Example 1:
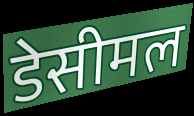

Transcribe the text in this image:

डेसीमल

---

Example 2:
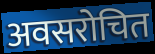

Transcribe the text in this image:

अवसरोचित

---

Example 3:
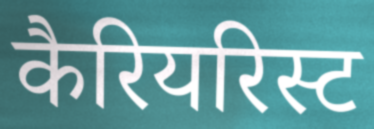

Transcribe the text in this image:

कैरियरिस्ट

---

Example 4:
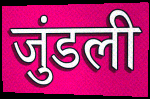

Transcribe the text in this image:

जुंडली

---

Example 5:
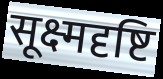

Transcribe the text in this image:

सूक्ष्मदृष्टि